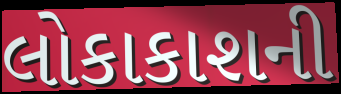
લોકાકાશની